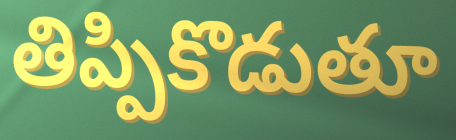
తిప్పికొడుతూ